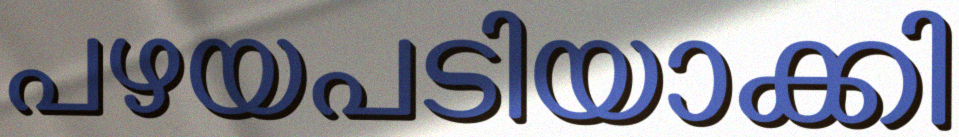
പഴയപടിയാക്കി